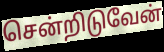
சென்றிடுவேன்